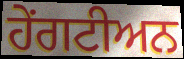
ਹੇਂਗਟੀਅਨ